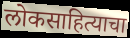
लोकसाहित्याचा